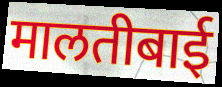
मालतीबाई